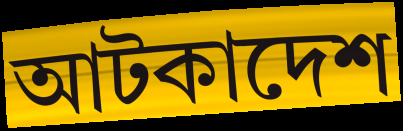
আটকাদেশ